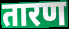
तारण